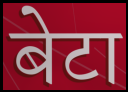
बेटा